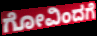
ಗೋವಿಂದಗೆ